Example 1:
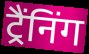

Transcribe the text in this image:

ट्रैंनिंग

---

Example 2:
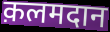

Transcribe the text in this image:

क़लमदान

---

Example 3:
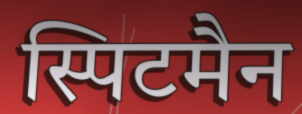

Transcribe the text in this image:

स्पिटमैन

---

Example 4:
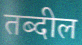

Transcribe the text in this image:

तब्दील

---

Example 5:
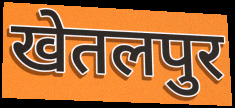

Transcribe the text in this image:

खेतलपुर